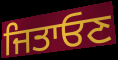
ਜਿਤਾਓਣ